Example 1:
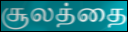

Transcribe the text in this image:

சூலத்தை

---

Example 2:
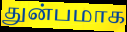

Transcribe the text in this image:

துன்பமாக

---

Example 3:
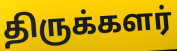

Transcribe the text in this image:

திருக்களர்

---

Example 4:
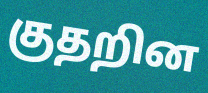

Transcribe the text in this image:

குதறின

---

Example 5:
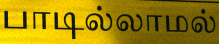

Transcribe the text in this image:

பாடில்லாமல்